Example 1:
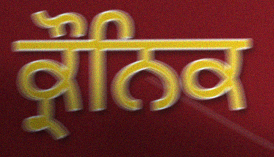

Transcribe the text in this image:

ਕ੍ਰੌਨਿਕ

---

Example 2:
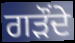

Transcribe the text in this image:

ਗੜੌਂਦੇ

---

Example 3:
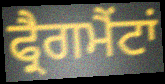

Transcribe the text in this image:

ਫ੍ਰੈਗਮੈਂਟਾਂ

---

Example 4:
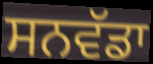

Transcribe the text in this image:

ਸਨਵੱਡਾ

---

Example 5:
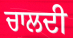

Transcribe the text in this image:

ਚਾਲਦੀ